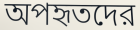
অপহৃতদের